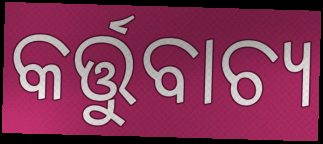
କର୍ତ୍ତୁବାଚ୍ୟ